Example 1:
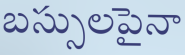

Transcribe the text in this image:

బస్సులపైనా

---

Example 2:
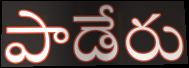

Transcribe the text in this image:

పాడేరు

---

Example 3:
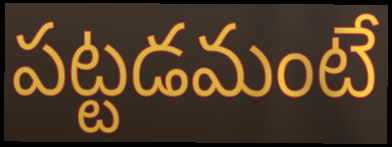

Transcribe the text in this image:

పట్టడమంటే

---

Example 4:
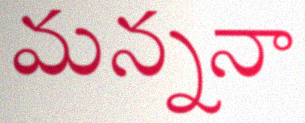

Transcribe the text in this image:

మన్ననా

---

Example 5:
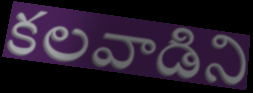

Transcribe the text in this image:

కలవాడిని